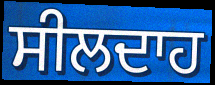
ਸੀਲਦਾਹ